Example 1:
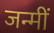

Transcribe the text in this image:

जन्मीं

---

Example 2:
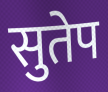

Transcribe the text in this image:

सुतेप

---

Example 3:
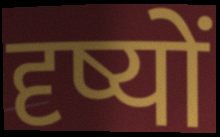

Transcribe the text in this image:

दृष्यों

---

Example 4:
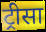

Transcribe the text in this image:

ट्रीसा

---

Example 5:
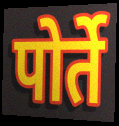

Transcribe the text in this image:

पोर्ते